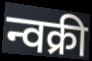
न्वक्री